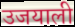
उजयाली